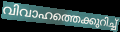
വിവാഹത്തെക്കുറിച്ച്